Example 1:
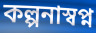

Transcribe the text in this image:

কল্পনাস্বপ্ন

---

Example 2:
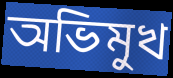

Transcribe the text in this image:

অভিমুখ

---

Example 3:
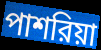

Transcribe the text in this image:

পাশরিয়া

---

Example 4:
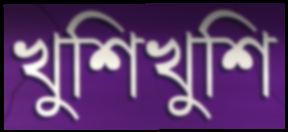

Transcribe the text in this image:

খুশিখুশি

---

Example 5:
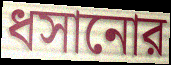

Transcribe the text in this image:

ধসানোর